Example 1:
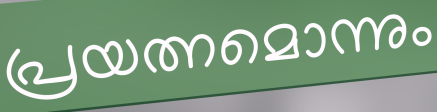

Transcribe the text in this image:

പ്രയത്നമൊന്നും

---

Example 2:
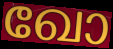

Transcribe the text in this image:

ഖോ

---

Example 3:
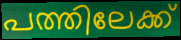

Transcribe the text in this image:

പത്തിലേക്ക്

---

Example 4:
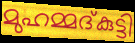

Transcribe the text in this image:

മുഹമ്മദ്കുട്ടി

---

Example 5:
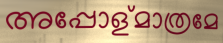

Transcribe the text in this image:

അപ്പോള്മാത്രമേ